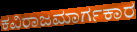
ಕವಿರಾಜಮಾರ್ಗಕಾರ